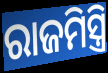
ରାଜମିସ୍ତ୍ରି